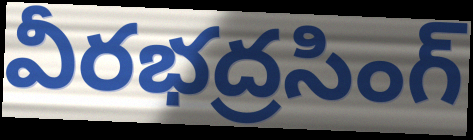
వీరభద్రసింగ్